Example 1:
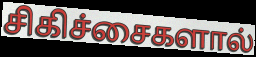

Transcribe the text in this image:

சிகிச்சைகளால்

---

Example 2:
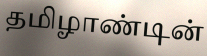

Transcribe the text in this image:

தமிழாண்டின்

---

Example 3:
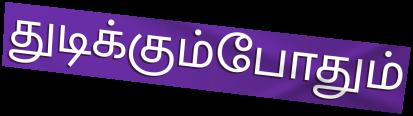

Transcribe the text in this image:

துடிக்கும்போதும்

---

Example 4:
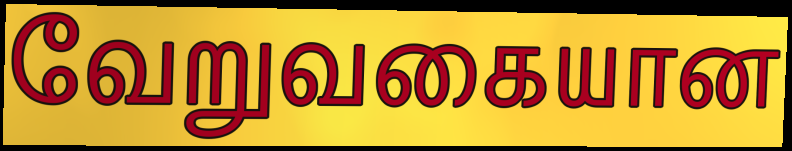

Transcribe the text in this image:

வேறுவகையான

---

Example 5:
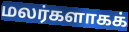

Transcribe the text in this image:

மலர்களாகக்